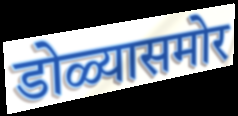
डोळ्यासमोर